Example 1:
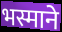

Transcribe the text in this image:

भस्माने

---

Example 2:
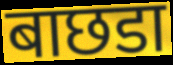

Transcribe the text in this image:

बाछडा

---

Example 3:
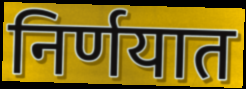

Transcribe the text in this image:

निर्णयात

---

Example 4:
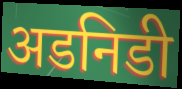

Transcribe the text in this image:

अडनिडी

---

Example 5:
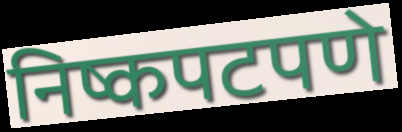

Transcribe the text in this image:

निष्कपटपणे